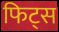
फिट्स